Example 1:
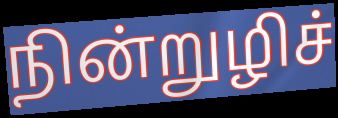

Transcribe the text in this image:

நின்றுழிச்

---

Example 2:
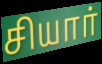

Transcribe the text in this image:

சியார்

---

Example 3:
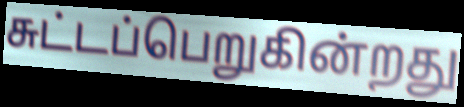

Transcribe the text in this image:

சுட்டப்பெறுகின்றது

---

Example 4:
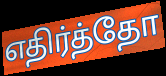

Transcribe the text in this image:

எதிர்த்தோ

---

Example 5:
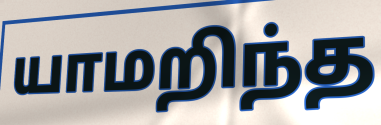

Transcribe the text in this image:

யாமறிந்த